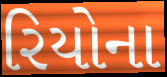
રિયોના